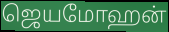
ஜெயமோஹன்